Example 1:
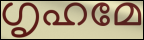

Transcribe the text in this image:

ഗൃഹമേ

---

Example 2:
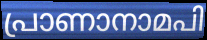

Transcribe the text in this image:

പ്രാണാനാമപി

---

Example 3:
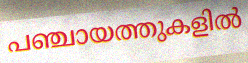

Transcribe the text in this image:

പഞ്ചായത്തുകളിൽ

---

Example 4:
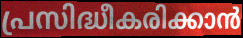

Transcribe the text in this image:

പ്രസിദ്ധീകരിക്കാൻ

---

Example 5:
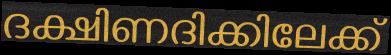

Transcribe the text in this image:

ദക്ഷിണദിക്കിലേക്ക്